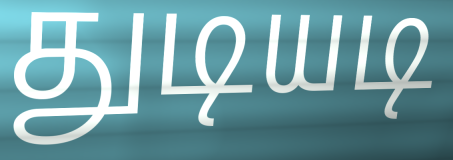
துடியடி